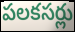
పలకసర్లు